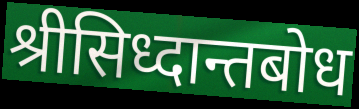
श्रीसिध्दान्तबोध